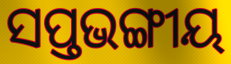
ସପ୍ତଭଙ୍ଗୀୟ